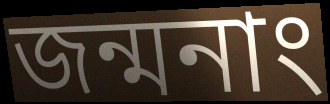
জন্মনাং